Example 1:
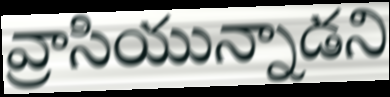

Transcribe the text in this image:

వ్రాసియున్నాడని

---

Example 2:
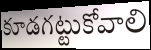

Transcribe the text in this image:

కూడగట్టుకోవాలి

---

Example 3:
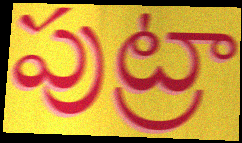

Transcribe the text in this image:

పుట్రా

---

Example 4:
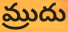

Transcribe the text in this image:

మ్రుదు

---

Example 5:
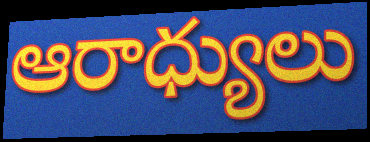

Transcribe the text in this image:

ఆరాధ్యులు